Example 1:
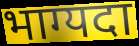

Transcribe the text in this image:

भाग्यदा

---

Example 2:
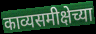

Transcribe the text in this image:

काव्यसमीक्षेच्या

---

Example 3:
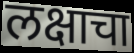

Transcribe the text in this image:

लक्षाचा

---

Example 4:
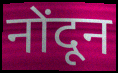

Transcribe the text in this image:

नोंदून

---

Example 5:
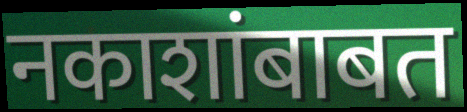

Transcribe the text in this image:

नकाशांबाबत